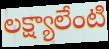
లక్ష్యాలేంటి